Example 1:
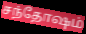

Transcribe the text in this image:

சந்தோஷம்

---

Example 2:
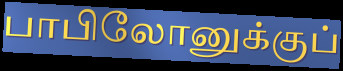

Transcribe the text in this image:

பாபிலோனுக்குப்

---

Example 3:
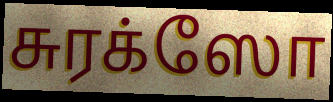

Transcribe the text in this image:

சுரக்ஸோ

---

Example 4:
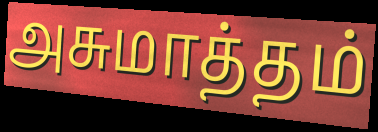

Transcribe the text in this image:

அசுமாத்தம்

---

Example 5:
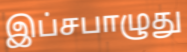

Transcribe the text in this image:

இப்சபாழுது